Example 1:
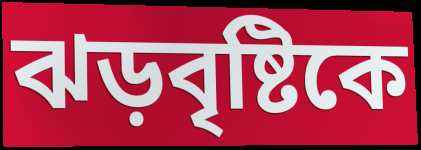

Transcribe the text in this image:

ঝড়বৃষ্টিকে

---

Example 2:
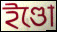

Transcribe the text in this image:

ইণ্ডো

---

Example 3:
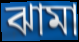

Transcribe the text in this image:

ঝামা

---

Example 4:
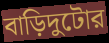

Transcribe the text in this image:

বাড়িদুটোর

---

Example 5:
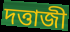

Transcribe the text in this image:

দত্তাজী